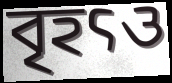
বৃহৎও